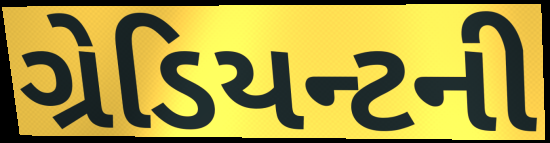
ગ્રેડિયન્ટની